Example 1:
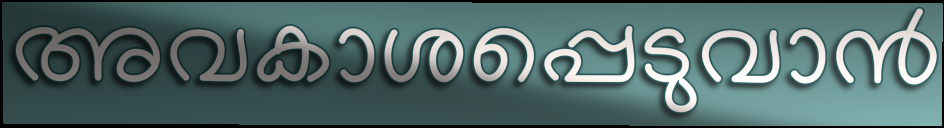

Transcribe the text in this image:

അവകാശപ്പെടുവാൻ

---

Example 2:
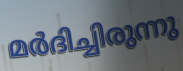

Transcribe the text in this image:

മർദിച്ചിരുന്നു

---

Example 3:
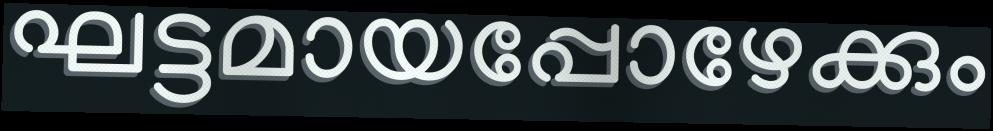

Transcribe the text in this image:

ഘട്ടമായപ്പോഴേക്കും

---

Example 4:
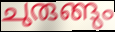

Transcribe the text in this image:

ചുരുങ്ങും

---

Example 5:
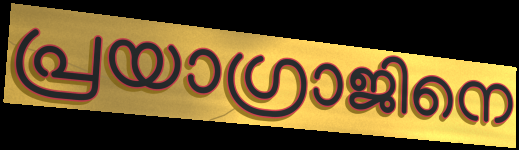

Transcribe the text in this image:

പ്രയാഗ്രാജിനെ